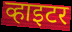
व्हाइटर